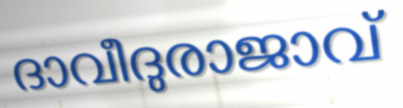
ദാവീദുരാജാവ്